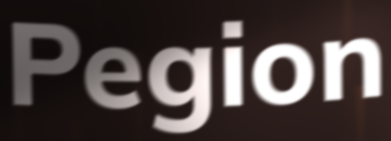
Pegion